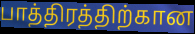
பாத்திரத்திற்கான